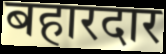
बहारदार